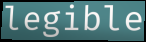
legible